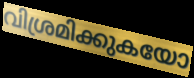
വിശ്രമിക്കുകയോ